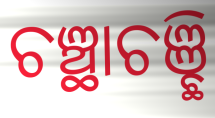
ଚଞ୍ଛାଚଞ୍ଛି